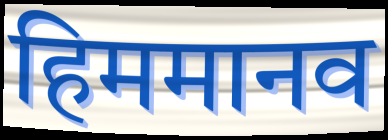
हिममानव